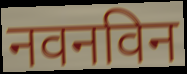
नवनविन